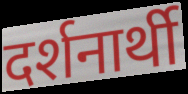
दर्शनार्थी